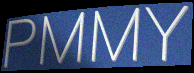
PMMY